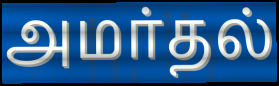
அமர்தல்